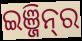
ଇଞ୍ଜିନ୍‍ର